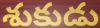
శుకుడు